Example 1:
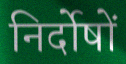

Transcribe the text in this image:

निर्दोषों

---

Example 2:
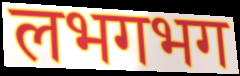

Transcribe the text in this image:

लभगभग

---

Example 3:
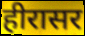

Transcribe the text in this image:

हीरासर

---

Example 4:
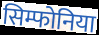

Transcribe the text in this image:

सिम्फोनिया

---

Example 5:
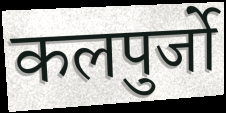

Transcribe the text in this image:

कलपुर्जो